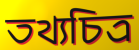
তথ্যচিত্র